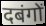
दबंगों